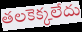
తలకెక్కలేదు